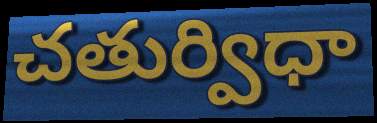
చతుర్విధా